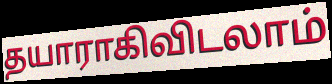
தயாராகிவிடலாம்